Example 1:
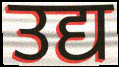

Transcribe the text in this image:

उद्य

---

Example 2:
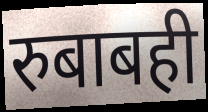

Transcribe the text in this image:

रुबाबही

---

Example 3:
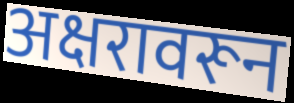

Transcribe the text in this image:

अक्षरावरून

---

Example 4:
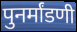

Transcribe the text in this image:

पुनर्मांडणी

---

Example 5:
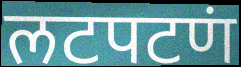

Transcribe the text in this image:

लटपटणं